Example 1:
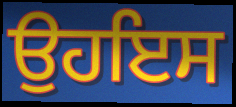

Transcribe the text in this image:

ਉਹਇਸ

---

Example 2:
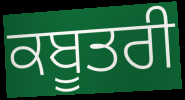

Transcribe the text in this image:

ਕਬੂਤਰੀ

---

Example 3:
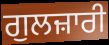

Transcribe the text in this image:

ਗੁਲਜ਼ਾਰੀ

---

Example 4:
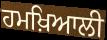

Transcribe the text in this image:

ਹਮਖ਼ਿਆਲੀ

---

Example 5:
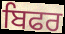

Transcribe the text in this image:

ਬਿਫਰ